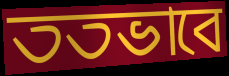
ততভাবে